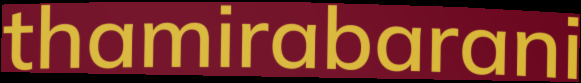
thamirabarani